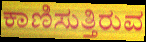
ಕಾಣಿಸುತ್ತಿರುವ